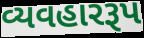
વ્યવહારરૂપ